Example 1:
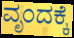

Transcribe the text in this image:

ವೃಂದಕ್ಕೆ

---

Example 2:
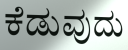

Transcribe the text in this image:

ಕೆಡುವುದು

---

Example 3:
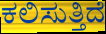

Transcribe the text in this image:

ಕಲಿಸುತ್ತಿದೆ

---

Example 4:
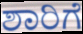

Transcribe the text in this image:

ಶಾರಿಗೆ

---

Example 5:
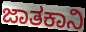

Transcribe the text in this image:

ಜಾತಕಾನಿ